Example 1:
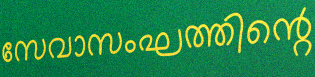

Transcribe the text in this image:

സേവാസംഘത്തിന്റെ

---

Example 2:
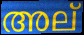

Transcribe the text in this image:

അല്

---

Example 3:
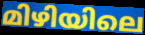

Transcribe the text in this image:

മിഴിയിലെ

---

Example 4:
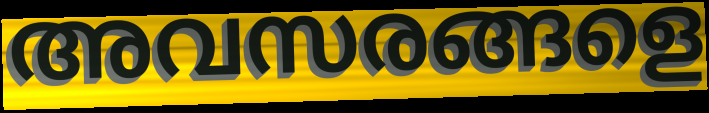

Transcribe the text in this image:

അവസരങ്ങളെ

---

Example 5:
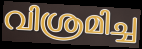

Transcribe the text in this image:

വിശ്രമിച്ച